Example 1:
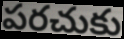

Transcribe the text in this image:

పరచుకు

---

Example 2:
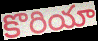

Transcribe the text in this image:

కొరియా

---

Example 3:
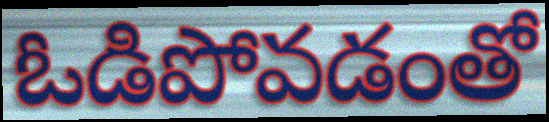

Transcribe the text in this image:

ఓడిపోవడంతో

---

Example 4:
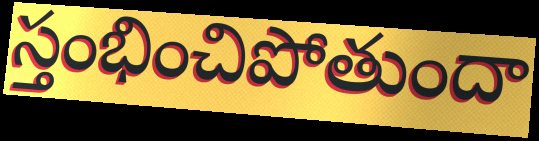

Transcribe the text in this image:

స్తంభించిపోతుందా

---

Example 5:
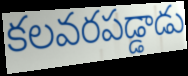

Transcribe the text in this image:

కలవరపడ్డాడు